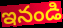
ఇనండి